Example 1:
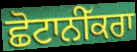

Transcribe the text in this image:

ਛੋਟਾਨੀੱਕਰਾ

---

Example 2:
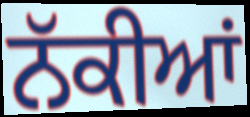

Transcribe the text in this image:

ਨੱਕੀਆਂ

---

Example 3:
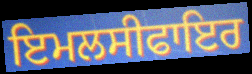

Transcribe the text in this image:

ਇਮਲਸੀਫਾਇਰ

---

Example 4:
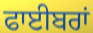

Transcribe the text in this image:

ਫਾਈਬਰਾਂ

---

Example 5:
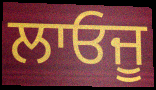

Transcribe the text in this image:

ਲਾਓਜੂ